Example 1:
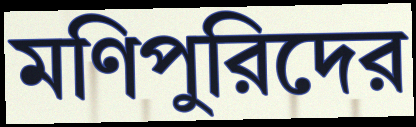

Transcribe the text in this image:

মণিপুরিদের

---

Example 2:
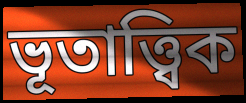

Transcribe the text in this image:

ভূতাত্ত্বিক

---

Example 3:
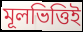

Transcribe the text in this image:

মূলভিত্তিই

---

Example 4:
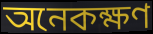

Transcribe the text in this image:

অনেকক্ষণ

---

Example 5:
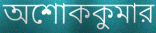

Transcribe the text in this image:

অশোককুমার